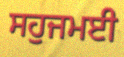
ਸਹੁਜਮਈ